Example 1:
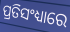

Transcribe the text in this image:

ପ୍ରତିସଂଧ୍ୟାରେ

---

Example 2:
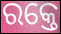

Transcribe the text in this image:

ରକ୍ତେ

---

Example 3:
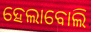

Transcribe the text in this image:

ହେଲାବୋଲି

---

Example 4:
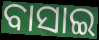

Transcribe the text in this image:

ବାସାଇ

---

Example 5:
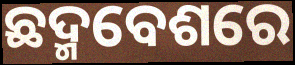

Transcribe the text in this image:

ଛଦ୍ମବେଶରେ